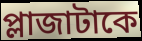
প্লাজাটাকে